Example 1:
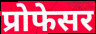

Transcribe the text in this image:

प्रोफेसर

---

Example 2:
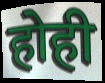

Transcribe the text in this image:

होही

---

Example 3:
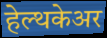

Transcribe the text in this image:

हेल्थकेअर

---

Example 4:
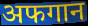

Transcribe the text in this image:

अफगान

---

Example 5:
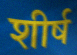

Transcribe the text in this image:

शीर्ष